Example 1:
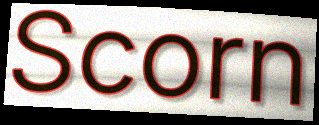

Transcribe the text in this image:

Scorn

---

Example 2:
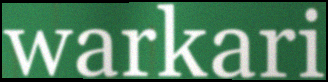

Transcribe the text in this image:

warkari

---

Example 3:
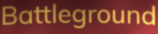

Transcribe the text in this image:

Battleground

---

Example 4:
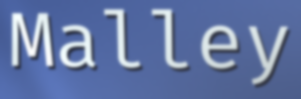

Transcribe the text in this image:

Malley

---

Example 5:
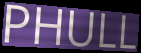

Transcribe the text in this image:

PHULL